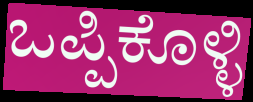
ಒಪ್ಪಿಕೊಳ್ಳಿ